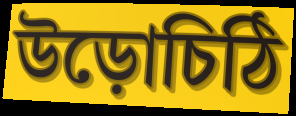
উড়োচিঠি